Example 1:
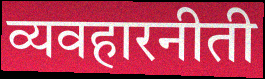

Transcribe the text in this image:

व्यवहारनीती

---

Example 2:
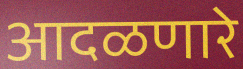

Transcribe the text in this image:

आदळणारे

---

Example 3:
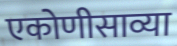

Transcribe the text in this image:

एकोणीसाव्या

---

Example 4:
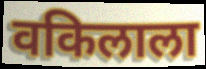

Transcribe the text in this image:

वकिलाला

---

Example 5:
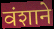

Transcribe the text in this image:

वंशाने